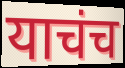
याचंच